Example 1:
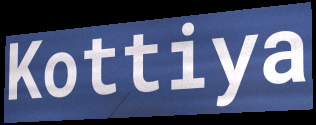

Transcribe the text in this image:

Kottiya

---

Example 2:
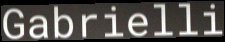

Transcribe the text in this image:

Gabrielli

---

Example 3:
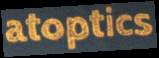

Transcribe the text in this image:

atoptics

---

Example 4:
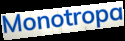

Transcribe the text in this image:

Monotropa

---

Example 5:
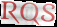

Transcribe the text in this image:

RQS